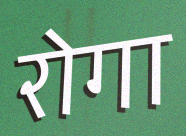
रोगा